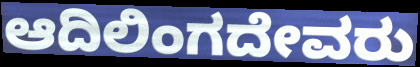
ಆದಿಲಿಂಗದೇವರು